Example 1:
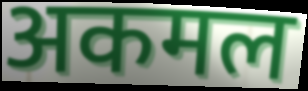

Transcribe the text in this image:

अकमल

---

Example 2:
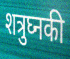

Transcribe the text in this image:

शत्रुघ्नकी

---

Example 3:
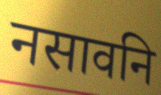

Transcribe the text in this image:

नसावनि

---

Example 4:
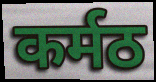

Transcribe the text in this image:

कर्मठ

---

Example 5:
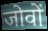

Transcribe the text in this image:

जोवों